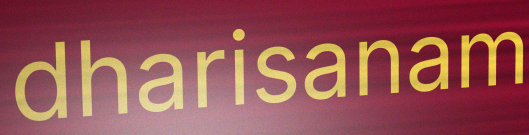
dharisanam